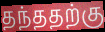
தந்ததற்கு